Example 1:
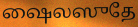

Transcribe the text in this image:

ஷைலஸுதே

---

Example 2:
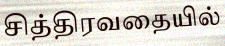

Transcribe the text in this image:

சித்திரவதையில்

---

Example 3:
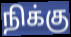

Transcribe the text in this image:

நிக்கு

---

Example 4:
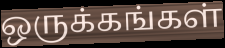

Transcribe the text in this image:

ஒருக்கங்கள்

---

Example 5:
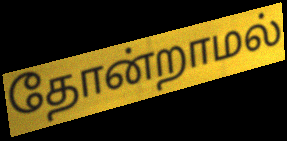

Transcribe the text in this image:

தோன்றாமல்